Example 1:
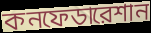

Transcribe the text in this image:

কনফেডারেশান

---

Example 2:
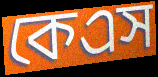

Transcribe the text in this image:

কেএস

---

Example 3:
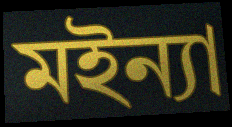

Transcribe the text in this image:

মইন্যা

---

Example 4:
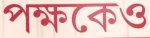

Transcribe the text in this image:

পক্ষকেও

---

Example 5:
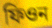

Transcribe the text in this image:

ফিওন